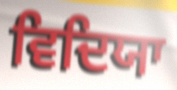
ਵਿਦਿਯਾ